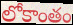
లోకాంతం